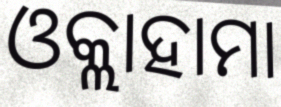
ଓକ୍ଲାହାମା